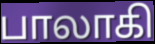
பாலாகி